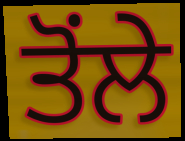
ਤੋਂਲੇ